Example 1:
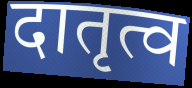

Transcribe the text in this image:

दातृत्व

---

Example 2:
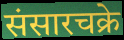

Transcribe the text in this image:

संसारचक्रे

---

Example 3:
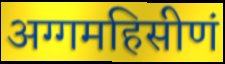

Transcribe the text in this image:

अग्गमहिसीणं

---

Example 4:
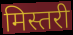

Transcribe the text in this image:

मिस्तरी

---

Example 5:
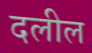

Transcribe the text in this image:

दलील